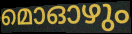
മൊഓഴും